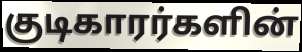
குடிகாரர்களின்